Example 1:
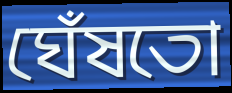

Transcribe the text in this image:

ঘেঁষতো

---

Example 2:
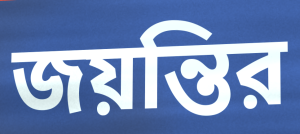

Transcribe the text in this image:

জয়ন্তির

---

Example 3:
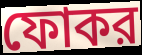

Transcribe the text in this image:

ফোকর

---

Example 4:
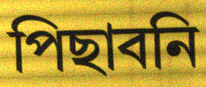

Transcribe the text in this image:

পিছাবনি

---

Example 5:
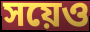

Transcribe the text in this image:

সয়েও